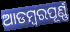
ଆଡମ୍ବରପୂର୍ଣ୍ଣ